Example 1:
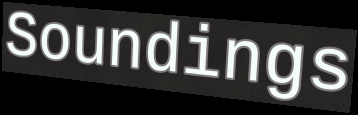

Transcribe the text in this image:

Soundings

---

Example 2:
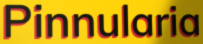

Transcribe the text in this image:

Pinnularia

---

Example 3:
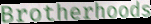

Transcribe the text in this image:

Brotherhoods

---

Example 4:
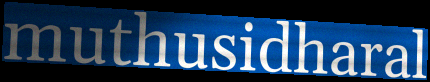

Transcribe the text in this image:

muthusidharal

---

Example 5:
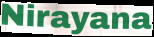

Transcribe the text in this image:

Nirayana